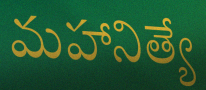
మహానిత్యే